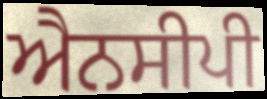
ਐਨਸੀਪੀ